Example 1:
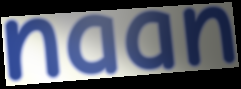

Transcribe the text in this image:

naan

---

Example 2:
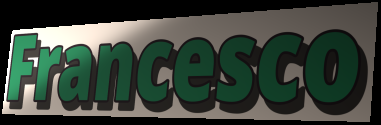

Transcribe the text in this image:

Francesco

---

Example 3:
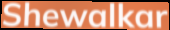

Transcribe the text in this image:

Shewalkar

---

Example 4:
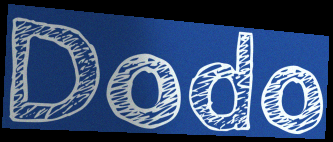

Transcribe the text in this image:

Dodo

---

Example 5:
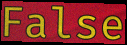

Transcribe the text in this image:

False